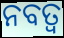
ନବତ୍ଵ